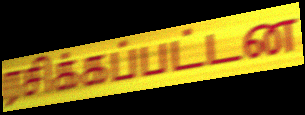
ரசிக்கப்பட்டன